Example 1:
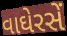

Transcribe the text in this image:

વાઘેરસેં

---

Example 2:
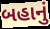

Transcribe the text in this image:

બહાનું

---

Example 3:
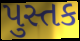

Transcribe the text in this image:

પુસ્તક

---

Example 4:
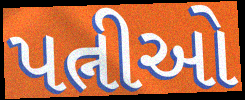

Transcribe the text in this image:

પત્નીઓ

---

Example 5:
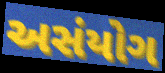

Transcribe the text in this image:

અસંયોગ